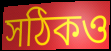
সঠিকও